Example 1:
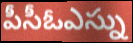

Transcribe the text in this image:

పీసీఓఎస్ను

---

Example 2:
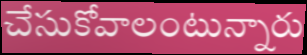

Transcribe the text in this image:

చేసుకోవాలంటున్నారు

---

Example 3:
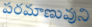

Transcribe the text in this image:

పరమాణువుని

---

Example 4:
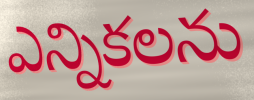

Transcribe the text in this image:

ఎన్నికలను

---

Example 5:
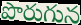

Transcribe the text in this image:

పొరుగున